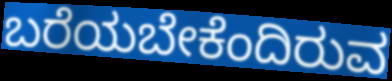
ಬರೆಯಬೇಕೆಂದಿರುವ